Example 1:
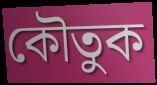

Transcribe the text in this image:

কৌতুক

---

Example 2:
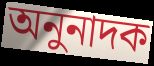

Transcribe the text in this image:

অনুনাদক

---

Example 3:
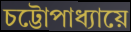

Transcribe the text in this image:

চট্টোপাধ্যায়ে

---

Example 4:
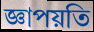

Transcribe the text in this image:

জ্ঞাপয়তি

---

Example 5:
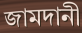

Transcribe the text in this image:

জামদানী